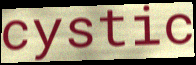
cystic